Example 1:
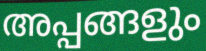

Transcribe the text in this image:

അപ്പങ്ങളും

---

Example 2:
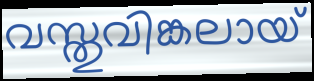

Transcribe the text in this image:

വസ്തുവിങ്കലായ്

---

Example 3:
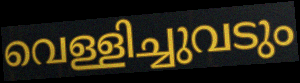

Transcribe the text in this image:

വെള്ളിച്ചുവടും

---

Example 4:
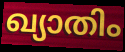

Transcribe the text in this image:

ഖ്യാതിം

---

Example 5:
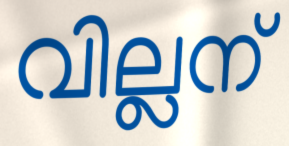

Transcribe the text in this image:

വില്ലന്